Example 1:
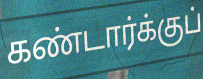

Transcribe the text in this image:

கண்டார்க்குப்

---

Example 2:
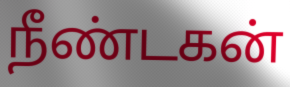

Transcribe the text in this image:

நீண்டகன்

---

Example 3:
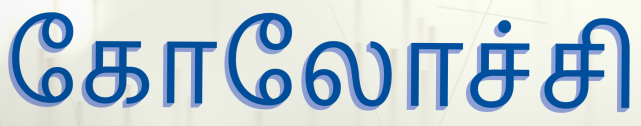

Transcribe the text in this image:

கோலோச்சி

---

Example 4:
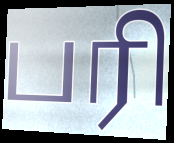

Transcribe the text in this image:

பரி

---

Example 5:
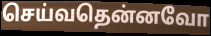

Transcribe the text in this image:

செய்வதென்னவோ